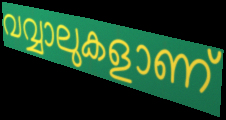
വവ്വാലുകളാണ്